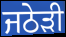
ਜਠੇੜੀ